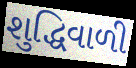
શુદ્ધિવાળી